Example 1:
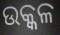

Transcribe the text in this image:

ଉକ୍କଳ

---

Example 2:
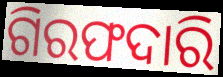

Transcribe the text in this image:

ଗିରଫଦାରି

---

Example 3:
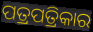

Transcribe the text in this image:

ପତ୍ରପତ୍ରିକାର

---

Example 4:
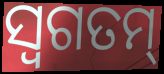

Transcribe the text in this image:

ସ୍ୱଗତମ୍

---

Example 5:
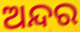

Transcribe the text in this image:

ଅନ୍ଦର